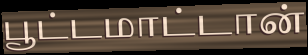
பூட்டமாட்டான்